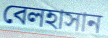
বেলহাসান